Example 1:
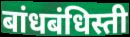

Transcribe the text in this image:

बांधबंधिस्ती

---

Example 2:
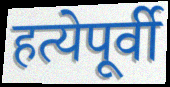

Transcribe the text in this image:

हत्येपूर्वी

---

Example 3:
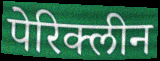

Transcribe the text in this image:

पेरिक्लीन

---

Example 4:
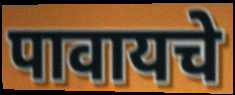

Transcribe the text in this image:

पावायचे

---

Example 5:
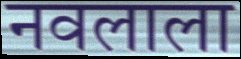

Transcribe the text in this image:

नवलाला